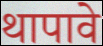
थापावे